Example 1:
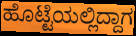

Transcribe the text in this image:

ಹೊಟ್ಟೆಯಲ್ಲಿದ್ದಾಗ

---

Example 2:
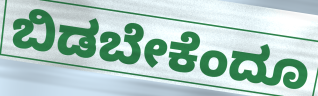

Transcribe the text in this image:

ಬಿಡಬೇಕೆಂದೂ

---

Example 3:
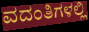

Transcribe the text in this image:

ವದಂತಿಗಳಲ್ಲಿ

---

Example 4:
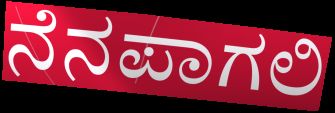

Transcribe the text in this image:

ನೆನಪಾಗಲಿ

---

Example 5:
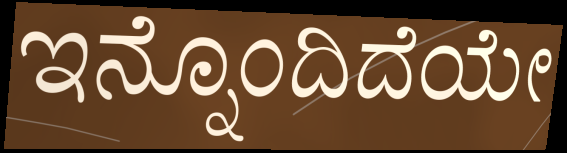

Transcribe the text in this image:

ಇನ್ನೊಂದಿದೆಯೇ